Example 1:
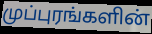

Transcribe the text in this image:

முப்புரங்களின்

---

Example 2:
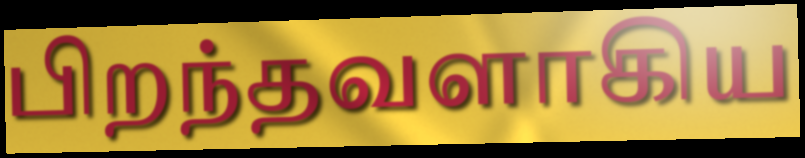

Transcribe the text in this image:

பிறந்தவளாகிய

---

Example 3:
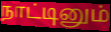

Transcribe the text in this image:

நாட்டினும்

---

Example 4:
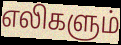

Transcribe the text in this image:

எலிகளும்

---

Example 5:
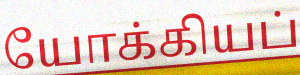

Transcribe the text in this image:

யோக்கியப்